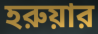
হরুয়ার